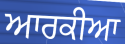
ਆਰਕੀਆ